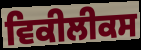
ਵਿਕੀਲੀਕਸ